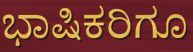
ಭಾಷಿಕರಿಗೂ